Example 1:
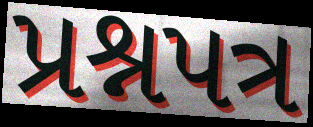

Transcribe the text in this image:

પ્રશ્નપત્ર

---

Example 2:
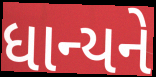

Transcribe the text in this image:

ધાન્યને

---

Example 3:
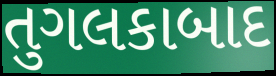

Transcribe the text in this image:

તુગલકાબાદ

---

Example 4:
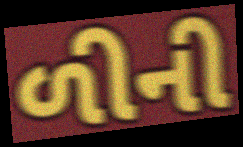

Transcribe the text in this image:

ળીની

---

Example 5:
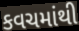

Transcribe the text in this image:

કવચમાંથી